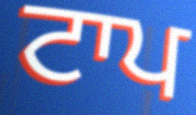
ਟਾਪ